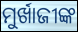
ମୁର୍ଖାଜୀଙ୍କ